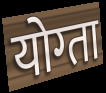
योग्ता